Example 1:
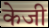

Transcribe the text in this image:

केजी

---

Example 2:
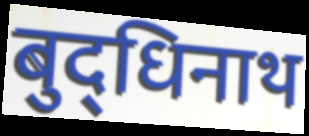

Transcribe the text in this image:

बुद्धिनाथ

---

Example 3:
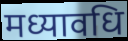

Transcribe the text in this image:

मध्‍यावधि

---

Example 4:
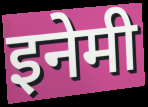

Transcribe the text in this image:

इनेमी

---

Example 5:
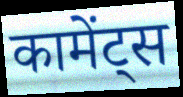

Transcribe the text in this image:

कामेंट्स